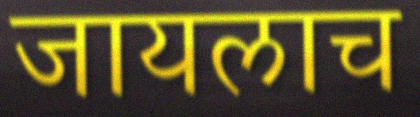
जायलाच